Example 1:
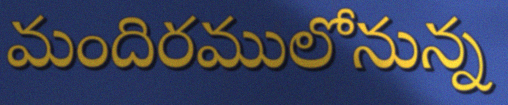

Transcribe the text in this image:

మందిరములోనున్న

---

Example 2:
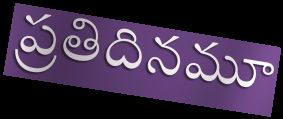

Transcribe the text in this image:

ప్రతిదినమూ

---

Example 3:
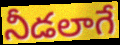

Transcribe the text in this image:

నీడలాగే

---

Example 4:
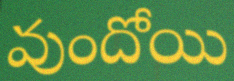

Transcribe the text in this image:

వుందోయి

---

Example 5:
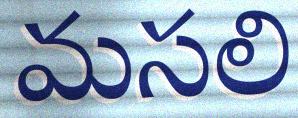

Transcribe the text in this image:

మసలి